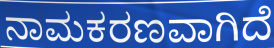
ನಾಮಕರಣವಾಗಿದೆ